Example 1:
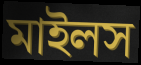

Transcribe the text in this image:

মাইলস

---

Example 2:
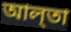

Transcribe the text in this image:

আল্‌তা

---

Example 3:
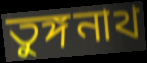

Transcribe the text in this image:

তুঙ্গনাথ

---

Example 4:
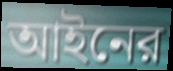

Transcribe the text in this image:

আইনের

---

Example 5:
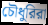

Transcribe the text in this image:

চৌধুরিরা